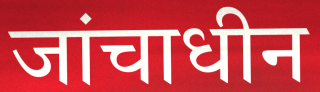
जांचाधीन